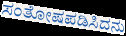
ಸಂತೋಷಪಡಿಸಿದನು